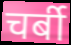
चर्बी